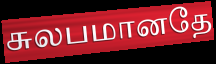
சுலபமானதே